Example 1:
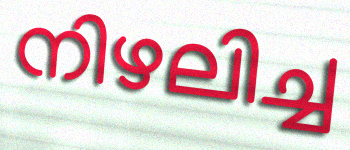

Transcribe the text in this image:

നിഴലിച്ച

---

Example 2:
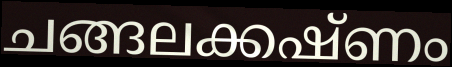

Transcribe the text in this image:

ചങ്ങലക്കഷ്ണം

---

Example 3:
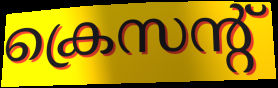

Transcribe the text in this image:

ക്രെസന്റ്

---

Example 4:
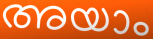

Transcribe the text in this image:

അയാം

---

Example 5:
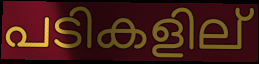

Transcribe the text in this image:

പടികളില്